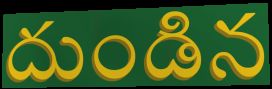
దుండిన